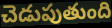
చెడుపుతుంది